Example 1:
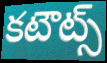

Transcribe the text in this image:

కటౌట్స్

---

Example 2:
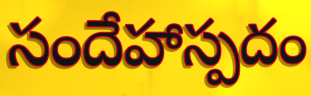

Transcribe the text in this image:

సందేహాస్పదం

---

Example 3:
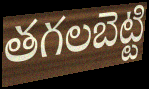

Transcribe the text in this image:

తగలబెట్టి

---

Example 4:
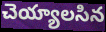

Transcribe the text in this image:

చెయ్యాలసిన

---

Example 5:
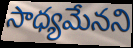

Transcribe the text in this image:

సాధ్యమేనని